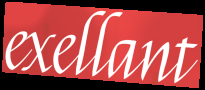
exellant